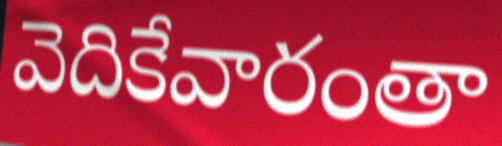
వెదికేవారంతా